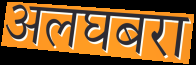
अलघबरा